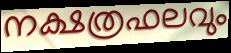
നക്ഷത്രഫലവും